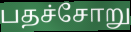
பதச்சோறு